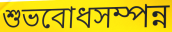
শুভবোধসম্পন্ন